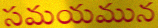
సమయమున